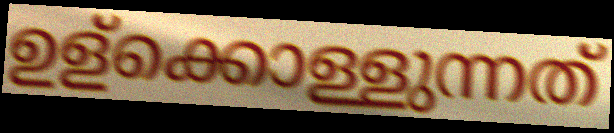
ഉള്ക്കൊള്ളുന്നത്